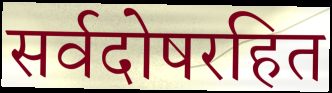
सर्वदोषरहित